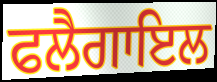
ਫਲੈਗਾਇਲ